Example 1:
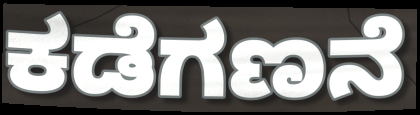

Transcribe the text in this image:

ಕಡೆಗಣನೆ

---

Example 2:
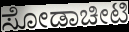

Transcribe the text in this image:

ಸೋಡಾಚೀಟಿ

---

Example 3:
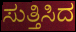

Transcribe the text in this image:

ಸುತ್ತಿಸಿದ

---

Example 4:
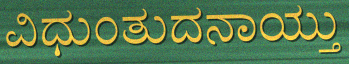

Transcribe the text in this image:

ವಿಧುಂತುದನಾಯ್ತು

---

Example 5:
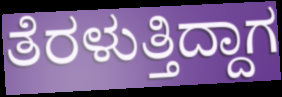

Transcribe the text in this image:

ತೆರಳುತ್ತಿದ್ದಾಗ